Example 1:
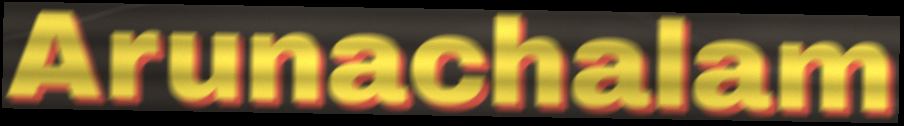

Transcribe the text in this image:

Arunachalam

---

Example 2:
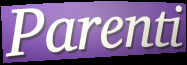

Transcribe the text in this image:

Parenti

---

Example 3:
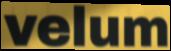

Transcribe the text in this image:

velum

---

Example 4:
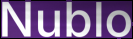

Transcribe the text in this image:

Nublo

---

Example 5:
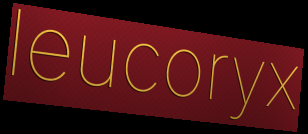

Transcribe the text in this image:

leucoryx